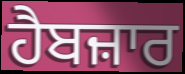
ਹੈਬਜ਼ਾਰ